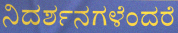
ನಿದರ್ಶನಗಳೆಂದರೆ